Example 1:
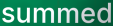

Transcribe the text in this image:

summed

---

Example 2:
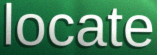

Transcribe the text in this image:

locate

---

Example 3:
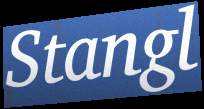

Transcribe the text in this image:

Stangl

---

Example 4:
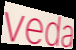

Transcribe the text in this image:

veda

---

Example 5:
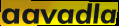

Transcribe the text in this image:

aavadla